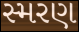
સ્‍મરણ